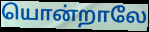
யொன்றாலே